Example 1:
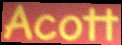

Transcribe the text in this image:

Acott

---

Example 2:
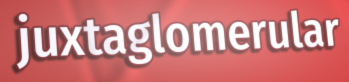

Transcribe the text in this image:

juxtaglomerular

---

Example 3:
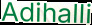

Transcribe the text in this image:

Adihalli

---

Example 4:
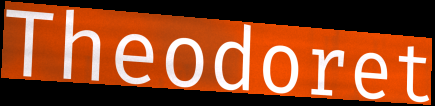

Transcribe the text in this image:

Theodoret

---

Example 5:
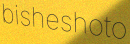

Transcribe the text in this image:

bisheshoto